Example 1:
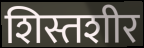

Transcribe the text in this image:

शिस्तशीर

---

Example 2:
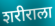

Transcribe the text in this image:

शरीराला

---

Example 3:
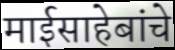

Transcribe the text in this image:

माईसाहेबांचे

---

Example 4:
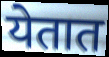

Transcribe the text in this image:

येतात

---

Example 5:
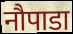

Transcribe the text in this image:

नौपाडा